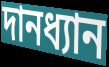
দানধ্যান